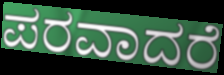
ಪರವಾದರೆ